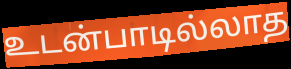
உடன்பாடில்லாத